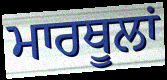
ਮਾਰਥੂਲਾਂ